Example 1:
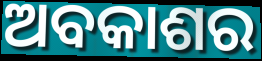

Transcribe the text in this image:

ଅବକାଶର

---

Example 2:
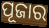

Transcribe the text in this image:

ପୂଜାର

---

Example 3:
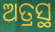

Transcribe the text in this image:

ଅତ୍ରସ୍ଥ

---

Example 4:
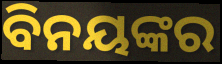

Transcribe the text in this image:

ବିନୟଙ୍କର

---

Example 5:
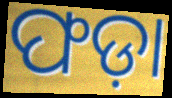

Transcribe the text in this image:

ଫଡ଼ା